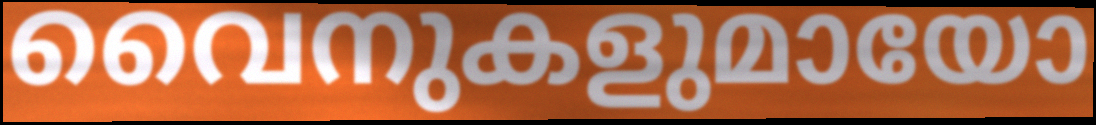
വൈനുകളുമായോ